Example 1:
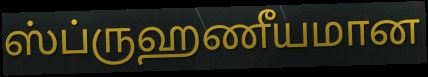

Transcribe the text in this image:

ஸ்ப்ருஹணீயமான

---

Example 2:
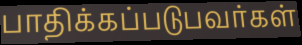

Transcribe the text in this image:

பாதிக்கப்படுபவர்கள்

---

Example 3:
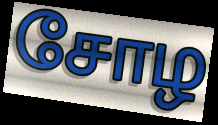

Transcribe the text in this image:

சோழ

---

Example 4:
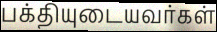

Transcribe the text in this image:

பக்தியுடையவர்கள்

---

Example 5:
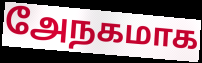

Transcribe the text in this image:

அேநகமாக